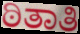
ಠಿತಾತಿ